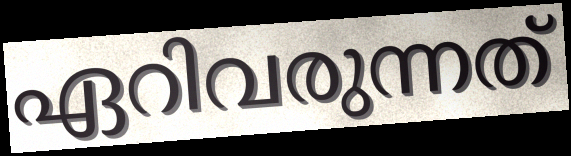
ഏറിവരുന്നത്